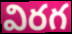
విరగ